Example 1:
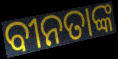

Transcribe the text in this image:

ବୀନତାଙ୍କ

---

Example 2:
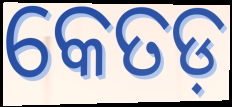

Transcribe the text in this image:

କେତଡ଼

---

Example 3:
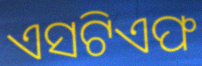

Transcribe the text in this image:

ଏସଟିଏଫ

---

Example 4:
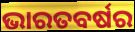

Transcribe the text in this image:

ଭାରତବର୍ଷର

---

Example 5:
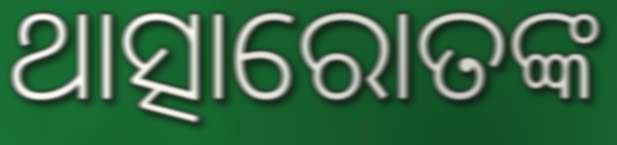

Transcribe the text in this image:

ଥାତ୍ସାରୋତଙ୍କ